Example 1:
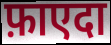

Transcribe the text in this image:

फ़ाएदा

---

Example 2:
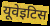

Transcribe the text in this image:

यूवेइटिस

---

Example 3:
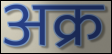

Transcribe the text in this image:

अक्र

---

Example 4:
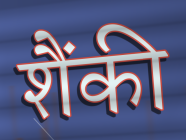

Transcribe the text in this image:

शैंकी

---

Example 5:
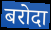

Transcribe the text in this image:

बरोदा